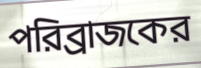
পরিব্রাজকের